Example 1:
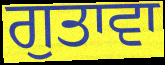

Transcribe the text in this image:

ਗੁਤਾਵਾ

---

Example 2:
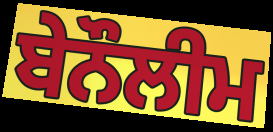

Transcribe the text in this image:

ਬੇਨੌਲੀਮ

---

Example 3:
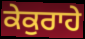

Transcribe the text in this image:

ਕੇਕੁਰਾਹੇ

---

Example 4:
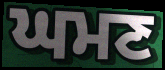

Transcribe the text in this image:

ਘਮਣ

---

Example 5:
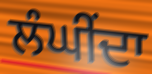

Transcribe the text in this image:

ਲੰਘੀਂਦਾ